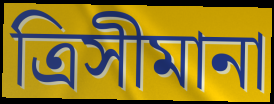
ত্রিসীমানা